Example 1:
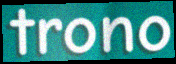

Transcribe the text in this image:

trono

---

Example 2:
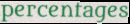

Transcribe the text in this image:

percentages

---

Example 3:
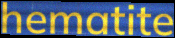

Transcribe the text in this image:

hematite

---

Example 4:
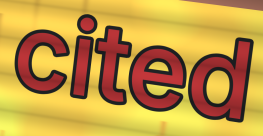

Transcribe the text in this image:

cited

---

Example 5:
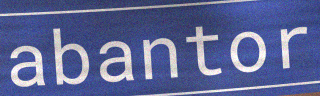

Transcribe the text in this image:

abantor